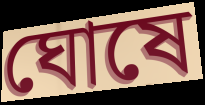
ঘোষে